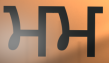
ਮਮ